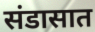
संडासात